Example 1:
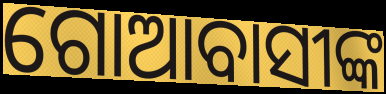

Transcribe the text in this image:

ଗୋଆବାସୀଙ୍କ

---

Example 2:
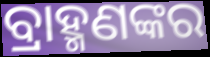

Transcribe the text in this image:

ବ୍ରାହ୍ମଣଙ୍କର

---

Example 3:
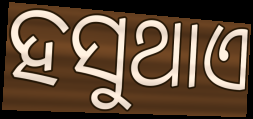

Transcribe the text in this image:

ହସୁଥାଏ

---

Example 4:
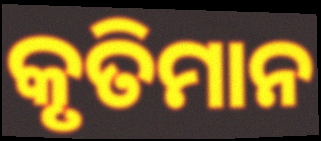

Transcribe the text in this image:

କୃତିମାନ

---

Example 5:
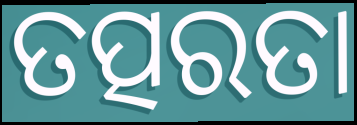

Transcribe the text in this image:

ତତ୍ପରତା